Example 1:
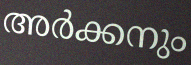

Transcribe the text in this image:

അർക്കനും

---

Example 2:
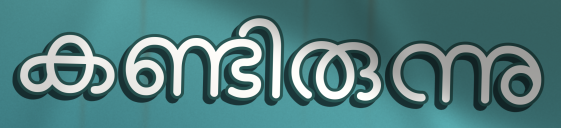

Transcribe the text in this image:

കണ്ടിരുന്നു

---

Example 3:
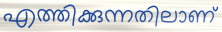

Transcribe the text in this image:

എത്തിക്കുന്നതിലാണ്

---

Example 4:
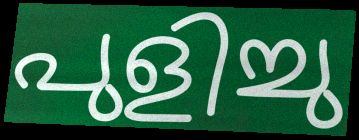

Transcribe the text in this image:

പുളിച്ചു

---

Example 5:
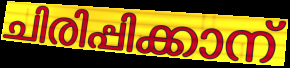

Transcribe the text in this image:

ചിരിപ്പിക്കാന്